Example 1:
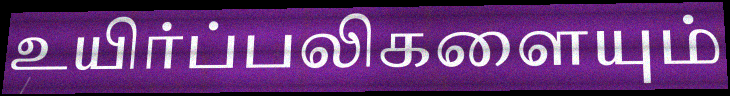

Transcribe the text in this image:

உயிர்ப்பலிகளையும்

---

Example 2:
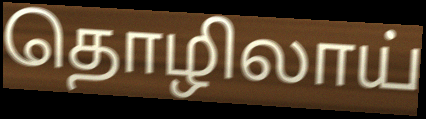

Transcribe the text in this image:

தொழிலாய்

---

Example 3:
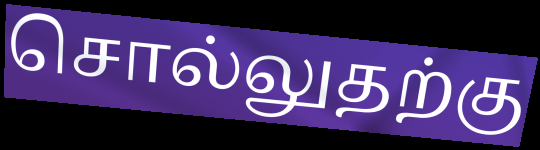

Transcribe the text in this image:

சொல்லுதற்கு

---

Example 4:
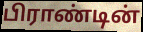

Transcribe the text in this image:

பிராண்டின்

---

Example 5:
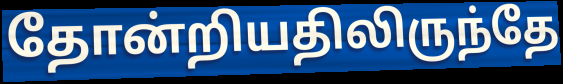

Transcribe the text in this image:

தோன்றியதிலிருந்தே